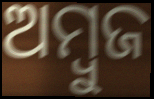
ଅମ୍ବୁଜ